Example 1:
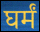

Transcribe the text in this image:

घर्मं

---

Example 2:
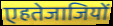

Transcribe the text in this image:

एहतेजाजियों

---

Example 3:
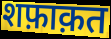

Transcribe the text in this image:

शफ़ाक़त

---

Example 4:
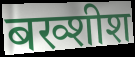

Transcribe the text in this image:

बख्शीश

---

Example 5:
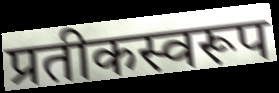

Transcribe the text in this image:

प्रतीकस्वरूप